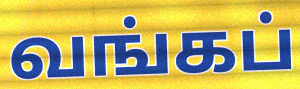
வங்கப்